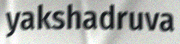
yakshadruva